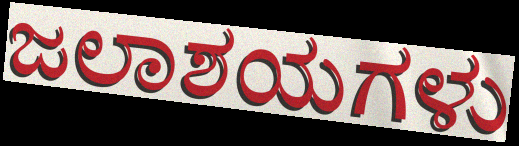
ಜಲಾಶಯಗಳು